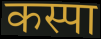
कस्पा